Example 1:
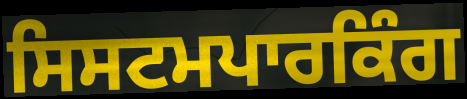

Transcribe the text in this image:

ਸਿਸਟਮਪਾਰਕਿੰਗ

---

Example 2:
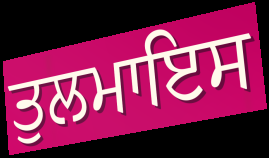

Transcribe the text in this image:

ਤੁਲਮਾਇਸ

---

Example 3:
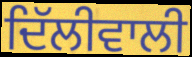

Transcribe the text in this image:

ਦਿੱਲੀਵਾਲੀ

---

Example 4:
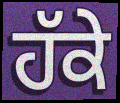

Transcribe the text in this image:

ਹੱਕੇ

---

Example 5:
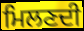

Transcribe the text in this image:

ਮਿਲਣਦੀ